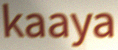
kaaya